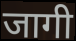
जागी